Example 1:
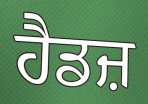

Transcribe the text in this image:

ਹੈਡਜ਼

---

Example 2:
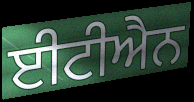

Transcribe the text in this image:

ਈਟੀਐਨ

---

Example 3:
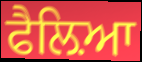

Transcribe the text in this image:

ਫੈਲ਼ਿਆ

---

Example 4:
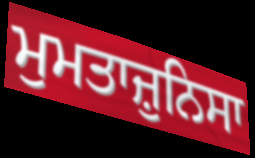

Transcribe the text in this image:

ਮੁਮਤਾਜ਼ੁਨਿਸਾ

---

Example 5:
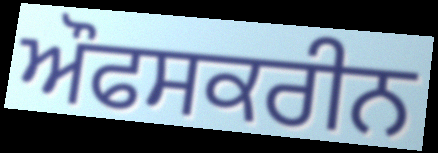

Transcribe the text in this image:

ਔਫਸਕਰੀਨ